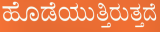
ಹೊಡೆಯುತ್ತಿರುತ್ತದೆ